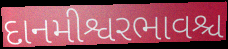
દાનમીશ્વરભાવશ્ચ